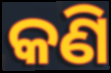
କଣି